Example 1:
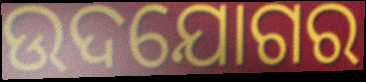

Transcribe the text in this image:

ଉଦଯୋଗର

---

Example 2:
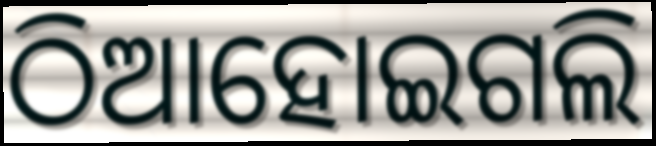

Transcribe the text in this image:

ଠିଆହୋଇଗଲି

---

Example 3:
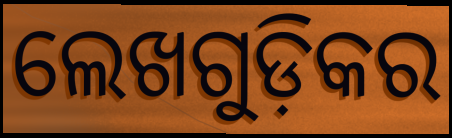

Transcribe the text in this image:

ଲେଖଗୁଡ଼ିକର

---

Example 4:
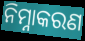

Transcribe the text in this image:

ନିମ୍ନାକରଣ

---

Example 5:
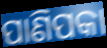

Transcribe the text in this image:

ପାଣିପକା